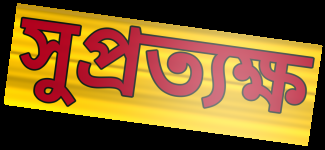
সুপ্রত্যক্ষ